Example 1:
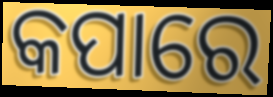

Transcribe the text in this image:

କପାରେ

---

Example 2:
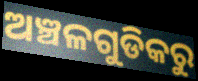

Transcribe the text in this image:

ଅଞ୍ଚଳଗୁଡିକରୁ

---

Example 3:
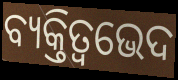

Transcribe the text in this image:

ବ୍ୟକ୍ତିତ୍ୱଭେଦ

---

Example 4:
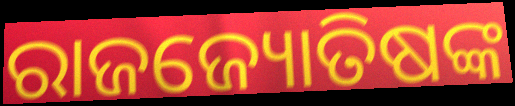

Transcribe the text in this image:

ରାଜଜ୍ୟୋତିଷଙ୍କ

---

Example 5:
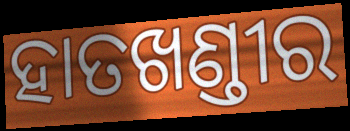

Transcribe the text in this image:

ହାତଖଣ୍ଡୀର